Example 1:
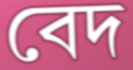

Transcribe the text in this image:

বেদ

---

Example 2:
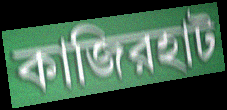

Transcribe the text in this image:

কাজিরহাট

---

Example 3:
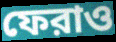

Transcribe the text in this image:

ফেরাও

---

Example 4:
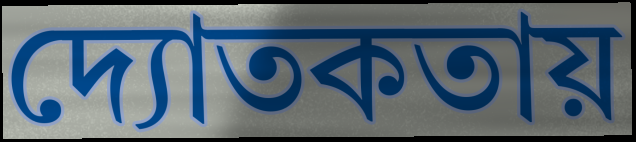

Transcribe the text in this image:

দ্যোতকতায়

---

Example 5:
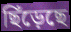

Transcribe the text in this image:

ছিঁড়েছে